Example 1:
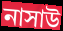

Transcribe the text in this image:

নাসাউ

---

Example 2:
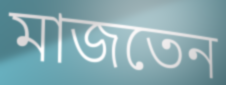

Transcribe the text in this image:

মাজতেন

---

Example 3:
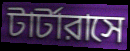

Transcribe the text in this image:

টার্টারাসে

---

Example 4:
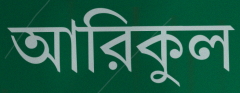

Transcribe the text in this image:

আরিকুল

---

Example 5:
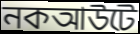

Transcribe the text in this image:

নকআউটে